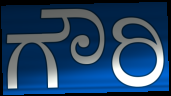
ಗೌರಿ